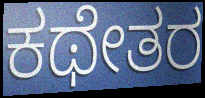
ಕಥೇತರ